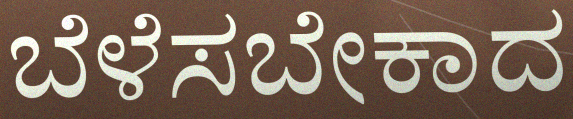
ಬೆಳೆಸಬೇಕಾದ